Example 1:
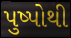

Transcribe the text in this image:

પુષ્પોથી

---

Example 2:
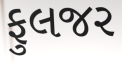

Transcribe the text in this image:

ફુલજર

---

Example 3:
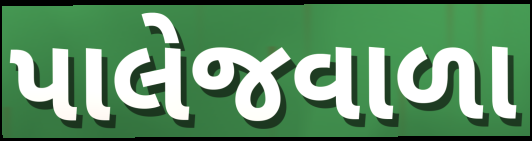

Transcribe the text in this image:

પાલેજવાળા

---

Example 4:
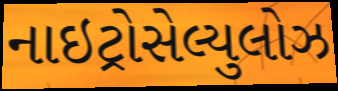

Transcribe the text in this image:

નાઇટ્રોસેલ્યુલોઝ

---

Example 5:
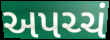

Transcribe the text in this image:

અપચ્ચં